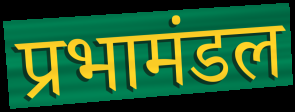
प्रभामंडल